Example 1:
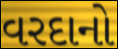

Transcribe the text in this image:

વરદાનો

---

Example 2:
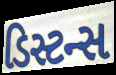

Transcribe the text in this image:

ડિસ્ટન્સ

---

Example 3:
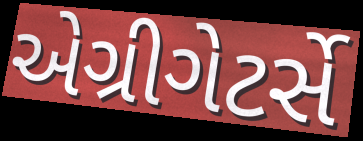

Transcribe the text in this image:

એગ્રીગેટર્સે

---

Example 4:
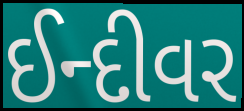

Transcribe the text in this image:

ઈન્દીવર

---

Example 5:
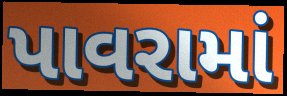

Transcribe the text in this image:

પાવરામાં